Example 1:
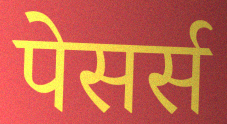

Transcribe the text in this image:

पेसर्स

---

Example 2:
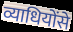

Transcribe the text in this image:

व्याधियोंसे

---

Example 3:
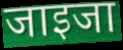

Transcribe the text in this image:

जाइजा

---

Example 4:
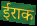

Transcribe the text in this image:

ईराक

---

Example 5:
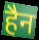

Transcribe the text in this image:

हैन